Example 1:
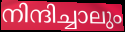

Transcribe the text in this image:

നിന്ദിച്ചാലും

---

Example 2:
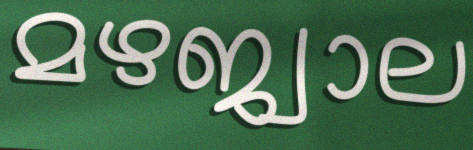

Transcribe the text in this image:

മഴജ്വാല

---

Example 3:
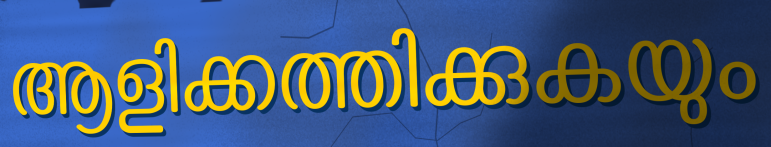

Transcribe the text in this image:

ആളിക്കത്തിക്കുകയും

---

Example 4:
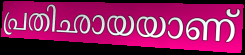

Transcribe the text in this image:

പ്രതിഛായയാണ്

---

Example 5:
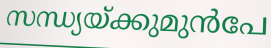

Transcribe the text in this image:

സന്ധ്യയ്ക്കുമുൻപേ